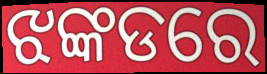
ଝଙ୍କଡରେ